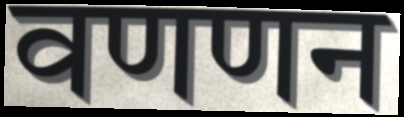
वणणन